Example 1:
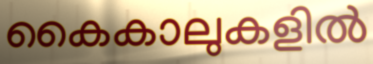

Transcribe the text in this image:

കൈകാലുകളിൽ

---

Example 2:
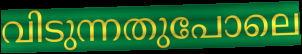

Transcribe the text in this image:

വിടുന്നതുപോലെ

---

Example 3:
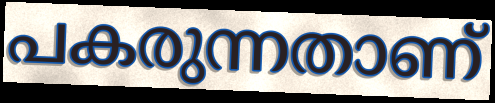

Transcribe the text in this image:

പകരുന്നതാണ്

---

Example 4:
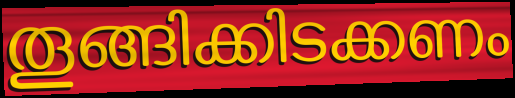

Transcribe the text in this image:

തൂങ്ങിക്കിടക്കണം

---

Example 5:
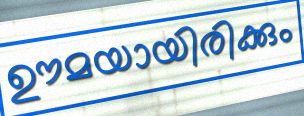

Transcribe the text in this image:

ഊമയായിരിക്കും